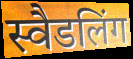
स्वैडलिंग